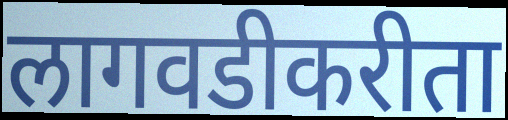
लागवडीकरीता